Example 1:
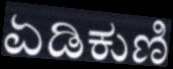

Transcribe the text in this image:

ಏಡಿಕುಣಿ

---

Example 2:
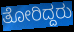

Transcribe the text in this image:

ತೋರಿದ್ದರು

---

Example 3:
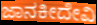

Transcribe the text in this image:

ಜಾನಕೀದೇವಿ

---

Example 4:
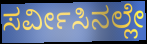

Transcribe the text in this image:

ಸರ್ವೀಸಿನಲ್ಲೇ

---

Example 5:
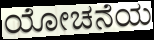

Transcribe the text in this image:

ಯೋಚನೆಯ